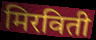
मिरविती